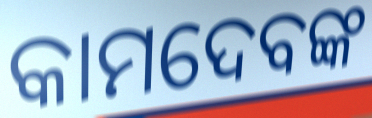
କାମଦେବଙ୍କ